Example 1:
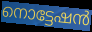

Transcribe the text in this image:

നൊട്ടേഷൻ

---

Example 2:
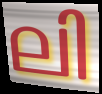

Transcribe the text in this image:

ലി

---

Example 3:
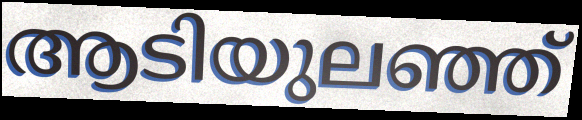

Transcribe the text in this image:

ആടിയുലഞ്ഞ്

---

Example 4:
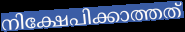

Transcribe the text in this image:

നിക്ഷേപിക്കാത്തത്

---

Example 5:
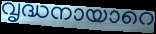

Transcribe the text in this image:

വൃദ്ധനായാറെ